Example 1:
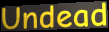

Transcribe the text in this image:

Undead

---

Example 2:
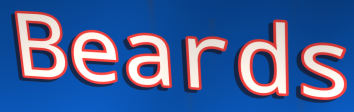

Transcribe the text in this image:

Beards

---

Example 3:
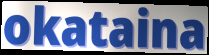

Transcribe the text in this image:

okataina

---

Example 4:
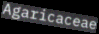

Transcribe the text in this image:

Agaricaceae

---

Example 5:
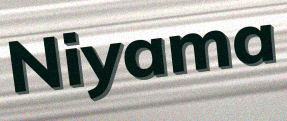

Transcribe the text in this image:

Niyama